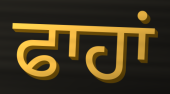
ਫਾਹਾਂ